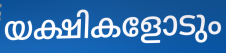
യക്ഷികളോടും